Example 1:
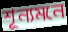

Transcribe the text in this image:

শূন্যমনে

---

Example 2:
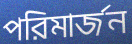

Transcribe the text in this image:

পরিমার্জন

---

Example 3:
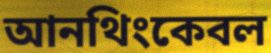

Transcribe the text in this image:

আনথিংকেবল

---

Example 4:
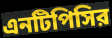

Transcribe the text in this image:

এনটিপিসির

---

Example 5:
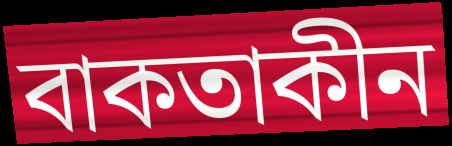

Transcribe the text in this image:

বাকতাকীন